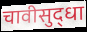
चावीसुद्धा